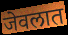
जेवलात